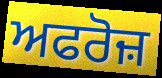
ਅਫਰੋਜ਼